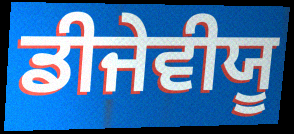
ਡੀਜੇਵੀਯੂ